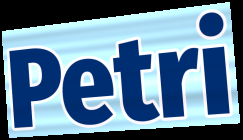
Petri